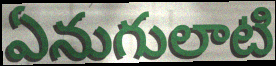
ఏనుగులాటి